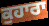
ਕੁਹਾਰਾ